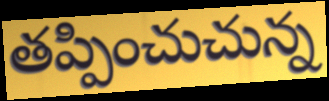
తప్పించుచున్న